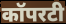
कॉपरटी